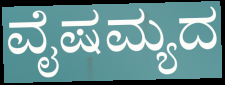
ವೈಷಮ್ಯದ